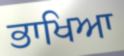
ਭਾਖਿਆ